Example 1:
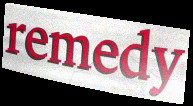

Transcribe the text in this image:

remedy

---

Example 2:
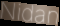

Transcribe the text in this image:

Nidan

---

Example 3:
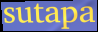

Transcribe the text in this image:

sutapa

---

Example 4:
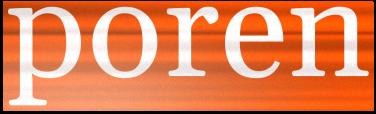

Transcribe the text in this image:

poren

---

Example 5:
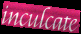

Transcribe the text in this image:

inculcate